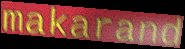
makarand